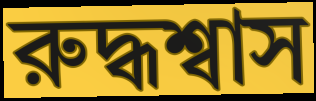
রুদ্ধশ্বাস